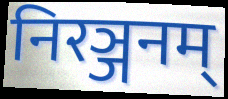
निरञ्जनम्